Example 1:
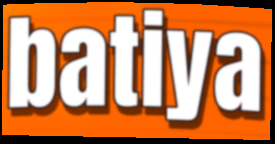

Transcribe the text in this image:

batiya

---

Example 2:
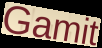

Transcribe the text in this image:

Gamit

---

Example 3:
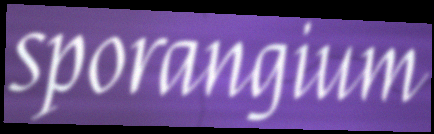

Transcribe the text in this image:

sporangium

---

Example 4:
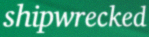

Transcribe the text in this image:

shipwrecked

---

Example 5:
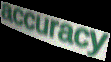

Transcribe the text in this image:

accuracy